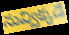
నువ్విక్కడే